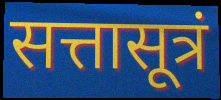
सत्तासूत्रं